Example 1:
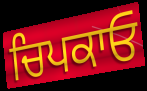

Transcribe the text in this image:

ਚਿਪਕਾਓ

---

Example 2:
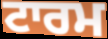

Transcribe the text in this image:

ਟਾਰਮ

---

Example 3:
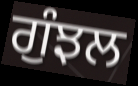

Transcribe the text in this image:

ਗੁੰਝਲ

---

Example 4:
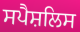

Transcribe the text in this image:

ਸਪੈਸ਼ਲਿਸ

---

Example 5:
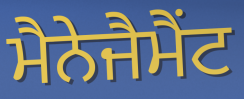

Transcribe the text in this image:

ਮੈਨੇਜੈਮੈਂਟ